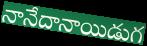
నానేదానాయిడుగ